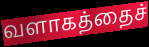
வளாகத்தைச்